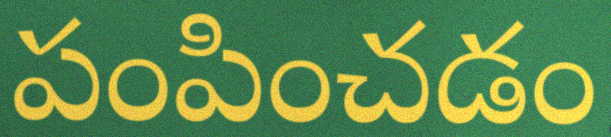
పంపించడం